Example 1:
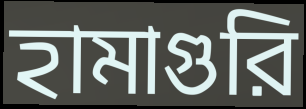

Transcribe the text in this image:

হামাগুরি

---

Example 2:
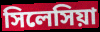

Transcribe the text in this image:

সিলেসিয়া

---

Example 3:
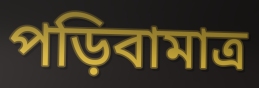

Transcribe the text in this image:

পড়িবামাত্র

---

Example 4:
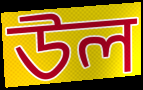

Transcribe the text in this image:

উল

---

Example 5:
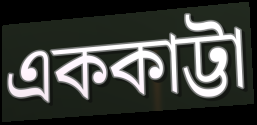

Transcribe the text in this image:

এককাট্টা